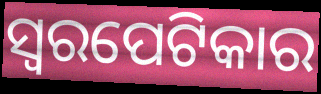
ସ୍ଵରପେଟିକାର